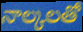
నాల్కలతో